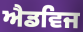
ਐਡਵਿਜ